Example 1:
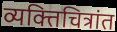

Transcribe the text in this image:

व्यक्तिचित्रांत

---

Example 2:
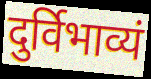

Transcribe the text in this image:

दुर्विभाव्यं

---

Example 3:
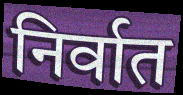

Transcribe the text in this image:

निर्वात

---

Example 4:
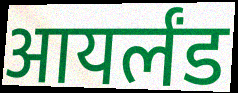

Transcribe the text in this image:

आयर्लंड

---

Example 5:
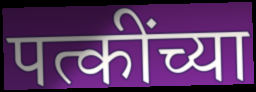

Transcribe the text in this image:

पत्कींच्या